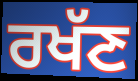
ਰਖੱਣ